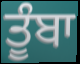
ਤੂੰਬਾ